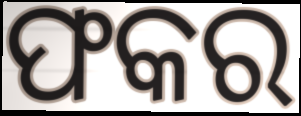
ଫକର